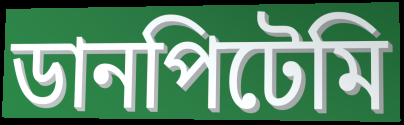
ডানপিটেমি